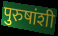
पुरुषांशी